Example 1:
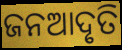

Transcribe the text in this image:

ଜନଆଦୃତି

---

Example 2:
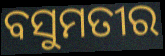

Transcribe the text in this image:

ବସୁମତୀର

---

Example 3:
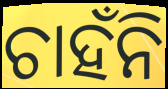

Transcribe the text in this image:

ଚାହଁନି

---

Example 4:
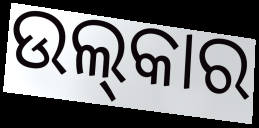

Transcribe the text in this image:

ଉଲ୍‌କାର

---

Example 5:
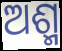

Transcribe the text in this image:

ଅଶ୍ମ